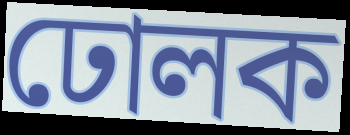
ঢোলক